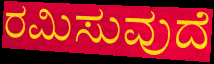
ರಮಿಸುವುದೆ